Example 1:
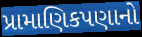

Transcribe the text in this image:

પ્રામાણિકપણાનો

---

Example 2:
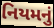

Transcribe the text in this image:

નિયમનું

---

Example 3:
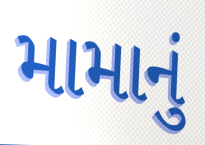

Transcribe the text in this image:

મામાનું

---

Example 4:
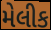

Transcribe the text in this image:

મેલીક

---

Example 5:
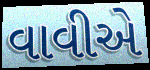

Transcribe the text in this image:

વાવીએ